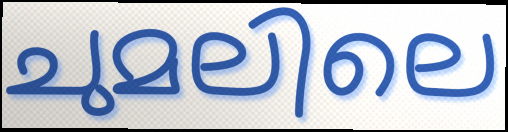
ചുമലിലെ